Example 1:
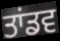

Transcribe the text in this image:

ਤਾਂਡਵ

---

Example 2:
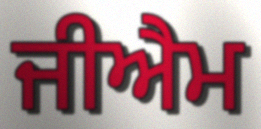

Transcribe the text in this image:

ਜੀਐਮ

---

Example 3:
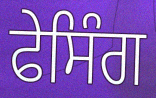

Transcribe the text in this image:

ਫੇਸਿੰਗ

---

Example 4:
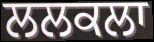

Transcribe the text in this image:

ਲਲਕਲਾ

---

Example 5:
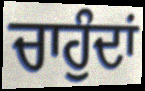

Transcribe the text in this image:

ਚਾਹੁੰਦਾਂ